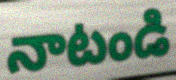
నాటండి